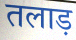
तलाड़